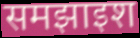
समझाइश